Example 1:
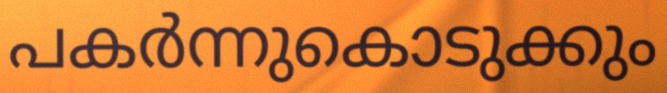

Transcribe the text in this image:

പകർന്നുകൊടുക്കും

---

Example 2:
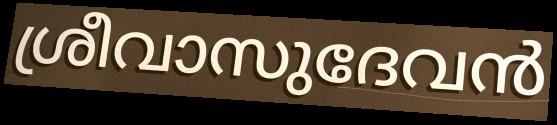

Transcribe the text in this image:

ശ്രീവാസുദേവൻ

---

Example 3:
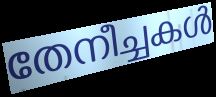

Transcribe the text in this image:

തേനീച്ചകൾ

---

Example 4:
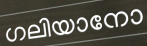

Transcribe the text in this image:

ഗലിയാനോ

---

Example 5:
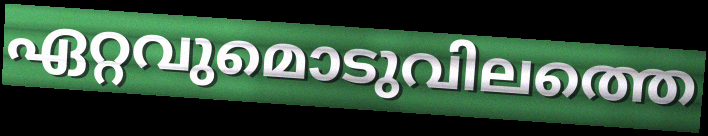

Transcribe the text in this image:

ഏറ്റവുമൊടുവിലത്തെ